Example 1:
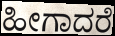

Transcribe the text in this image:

ಹೀಗಾದರೆ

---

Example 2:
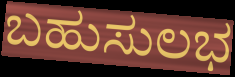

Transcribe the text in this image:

ಬಹುಸುಲಭ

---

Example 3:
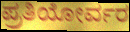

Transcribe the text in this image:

ಪ್ರತಿಯೋರ್ವರ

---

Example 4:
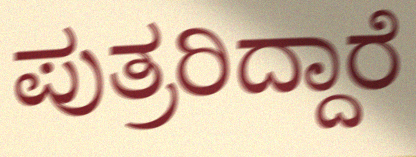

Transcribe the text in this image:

ಪುತ್ರರಿದ್ದಾರೆ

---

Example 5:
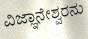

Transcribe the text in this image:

ವಿಜ್ಞಾನೇಶ್ವರನು